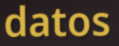
datos